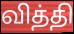
வித்தி